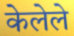
केलेले